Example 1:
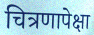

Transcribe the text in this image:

चित्रणापेक्षा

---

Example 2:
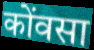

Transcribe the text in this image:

कोंवसा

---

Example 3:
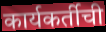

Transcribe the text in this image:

कार्यकर्तीची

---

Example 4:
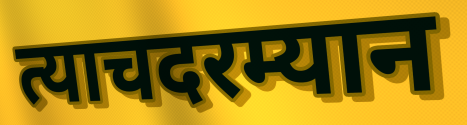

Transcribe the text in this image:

त्याचदरम्यान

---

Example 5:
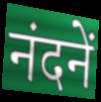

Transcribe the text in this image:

नंदनें